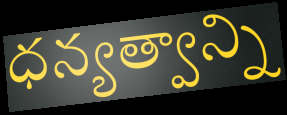
ధన్యత్వాన్ని